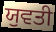
ਯੁਵਤੀ